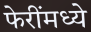
फेरींमध्ये